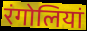
रंगोलियां